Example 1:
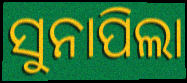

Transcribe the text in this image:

ସୁନାପିଲା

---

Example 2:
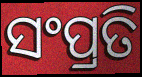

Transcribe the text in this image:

ସଂପ୍ରତି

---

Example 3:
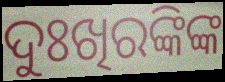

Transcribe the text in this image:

ଦୁଃଖିରଙ୍କିଙ୍କ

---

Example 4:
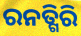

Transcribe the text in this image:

ରନତ୍ଗିରି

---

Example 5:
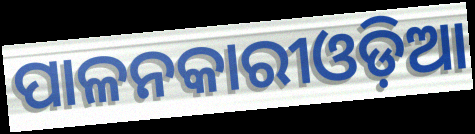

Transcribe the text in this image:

ପାଳନକାରୀଓଡ଼ିଆ